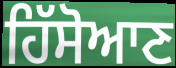
ਹਿੱਸੋਆਣ